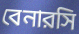
বেনারসি